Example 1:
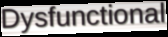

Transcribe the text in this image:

Dysfunctional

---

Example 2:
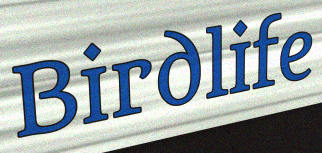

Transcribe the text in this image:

Birdlife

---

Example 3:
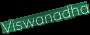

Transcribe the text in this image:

Viswanadha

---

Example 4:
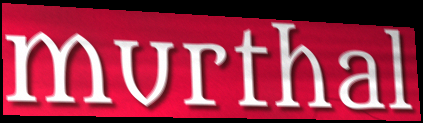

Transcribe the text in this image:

murthal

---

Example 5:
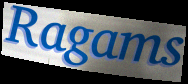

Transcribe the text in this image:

Ragams